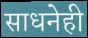
साधनेही